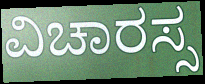
ವಿಚಾರಸ್ಸ